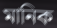
মানিক